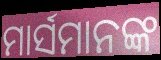
ମାର୍ସମାନଙ୍କ